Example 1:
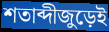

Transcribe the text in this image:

শতাব্দীজুড়েই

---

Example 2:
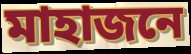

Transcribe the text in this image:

মাহাজনে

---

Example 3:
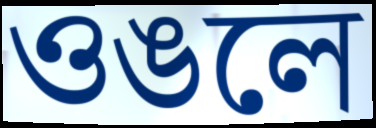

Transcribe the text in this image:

ওঙলে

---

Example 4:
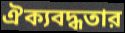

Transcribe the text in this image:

ঐক্যবদ্ধতার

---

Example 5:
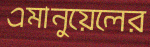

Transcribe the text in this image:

এমানুয়েলের